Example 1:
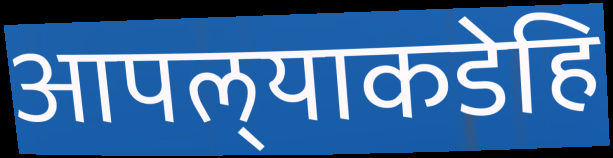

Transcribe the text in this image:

आपल्याकडेहि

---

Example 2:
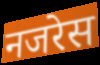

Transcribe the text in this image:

नजरेस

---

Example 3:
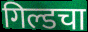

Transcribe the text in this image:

गिल्डचा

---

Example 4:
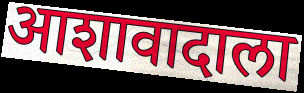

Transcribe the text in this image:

आशावादाला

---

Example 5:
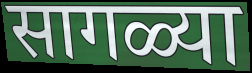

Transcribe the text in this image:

सागळ्या